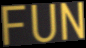
FUN